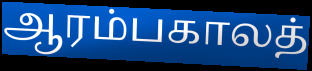
ஆரம்பகாலத்